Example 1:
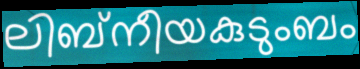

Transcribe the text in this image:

ലിബ്നീയകുടുംബം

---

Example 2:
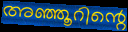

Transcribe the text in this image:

അഞ്ഞൂറിന്റെ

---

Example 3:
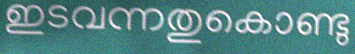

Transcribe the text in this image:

ഇടവന്നതുകൊണ്ടു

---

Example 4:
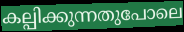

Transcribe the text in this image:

കല്പിക്കുന്നതുപോലെ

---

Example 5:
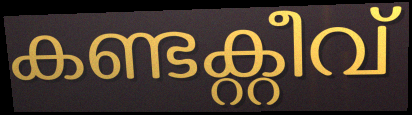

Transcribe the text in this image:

കണ്ടക്റ്റീവ്